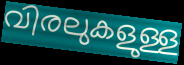
വിരലുകളുള്ള